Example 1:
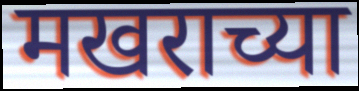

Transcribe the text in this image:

मखराच्या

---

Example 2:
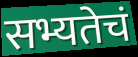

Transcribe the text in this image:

सभ्यतेचं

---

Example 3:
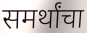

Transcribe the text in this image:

समर्थांचा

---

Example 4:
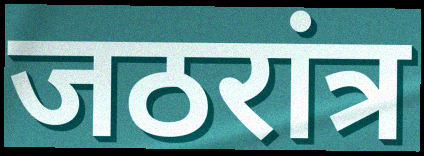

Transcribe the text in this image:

जठरांत्र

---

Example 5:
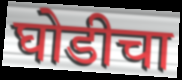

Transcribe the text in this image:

घोडीचा